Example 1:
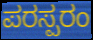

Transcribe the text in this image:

ಪರಸ್ಪರಂ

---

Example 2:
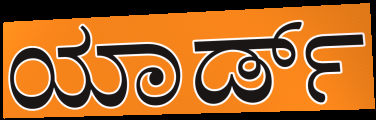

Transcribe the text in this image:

ಯಾರ್ಡ್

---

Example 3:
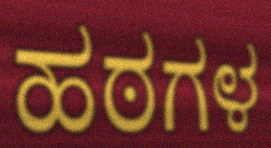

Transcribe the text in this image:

ಹಠಗಳ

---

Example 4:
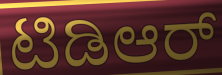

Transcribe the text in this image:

ಟಿಡಿಆರ್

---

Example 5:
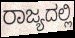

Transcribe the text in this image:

ರಾಜ್ಯದಲ್ಲಿ